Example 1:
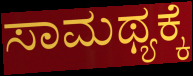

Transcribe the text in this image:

ಸಾಮಥ್ಯಕ್ಕೆ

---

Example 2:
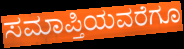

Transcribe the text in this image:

ಸಮಾಪ್ತಿಯವರೆಗೂ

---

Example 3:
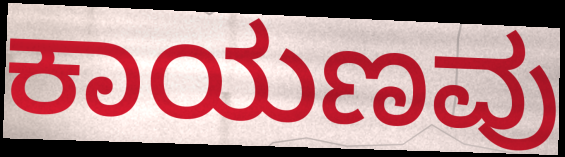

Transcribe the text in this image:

ಕಾಯಣವು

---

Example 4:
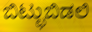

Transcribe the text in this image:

ಬಿಟ್ಟುಬಿಡಲಿ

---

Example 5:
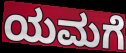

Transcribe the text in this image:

ಯಮಗೆ